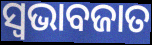
ସ୍ୱଭାବଜାତ